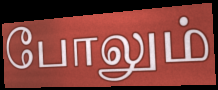
போலும்